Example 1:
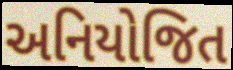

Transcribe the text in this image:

અનિયોજિત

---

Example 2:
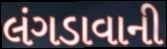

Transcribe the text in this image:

લંગડાવાની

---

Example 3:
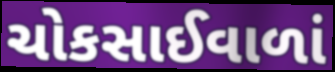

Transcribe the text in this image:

ચોકસાઈવાળાં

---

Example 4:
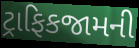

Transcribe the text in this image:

ટ્રાફિકજામની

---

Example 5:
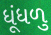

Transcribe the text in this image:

ધૂંધળુ